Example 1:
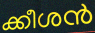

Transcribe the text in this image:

ക്കീശൻ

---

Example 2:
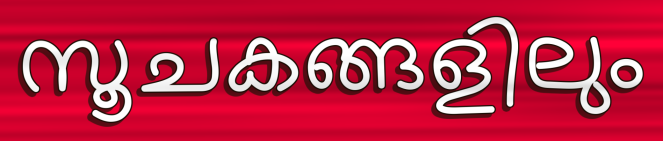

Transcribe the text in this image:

സൂചകങ്ങളിലും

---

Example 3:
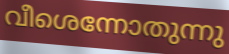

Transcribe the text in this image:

വീശെന്നോതുന്നു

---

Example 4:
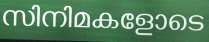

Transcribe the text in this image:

സിനിമകളോടെ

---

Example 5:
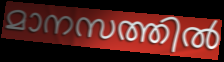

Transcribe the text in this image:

മാനസത്തിൽ